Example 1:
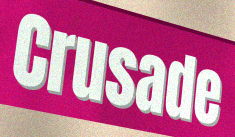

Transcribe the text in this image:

Crusade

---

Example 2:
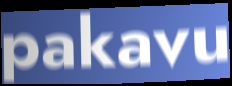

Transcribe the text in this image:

pakavu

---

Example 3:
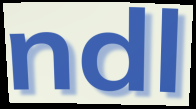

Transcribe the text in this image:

ndl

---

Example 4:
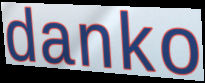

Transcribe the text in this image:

danko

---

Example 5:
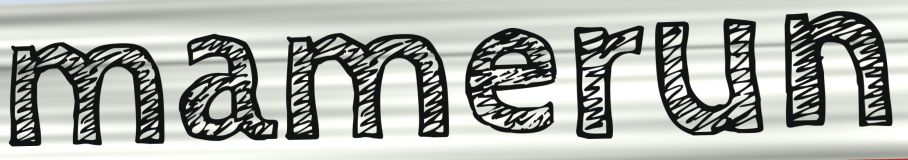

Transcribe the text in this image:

mamerun